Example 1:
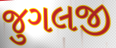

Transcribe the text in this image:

જુગલજી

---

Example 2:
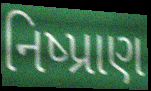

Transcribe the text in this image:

નિષ્પ્રાણ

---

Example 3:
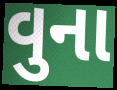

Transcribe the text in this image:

વુના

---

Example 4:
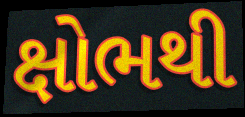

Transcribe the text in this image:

ક્ષોભથી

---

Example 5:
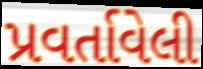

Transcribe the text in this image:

પ્રવર્તાવેલી